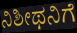
ನಿಶೀಥನಿಗೆ